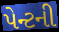
પેન્ટની